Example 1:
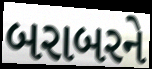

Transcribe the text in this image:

બરાબરને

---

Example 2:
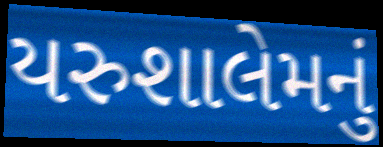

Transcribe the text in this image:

યરુશાલેમનું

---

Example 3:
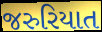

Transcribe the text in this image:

જરુરિયાત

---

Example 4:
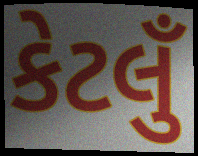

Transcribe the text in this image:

કેટલુઁ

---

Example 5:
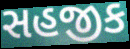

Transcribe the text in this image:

સહજીક